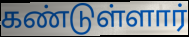
கண்டுள்ளார்